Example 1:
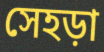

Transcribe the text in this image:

সেহড়া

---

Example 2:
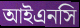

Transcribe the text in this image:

আইএনসি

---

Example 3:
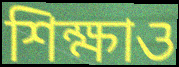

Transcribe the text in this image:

শিক্ষাও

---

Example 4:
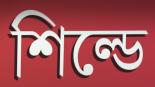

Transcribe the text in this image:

শিল্ডে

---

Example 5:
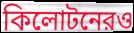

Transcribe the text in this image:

কিলোটনেরও